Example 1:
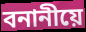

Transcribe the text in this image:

বনানীয়ে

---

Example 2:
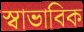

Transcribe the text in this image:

স্বাভাবিক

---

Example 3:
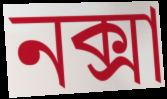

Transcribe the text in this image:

নক্সা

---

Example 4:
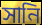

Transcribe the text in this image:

সানি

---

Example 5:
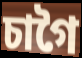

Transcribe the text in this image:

চাগৈ